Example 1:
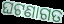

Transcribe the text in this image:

ଘଟଣାଗତ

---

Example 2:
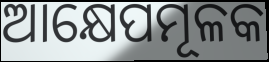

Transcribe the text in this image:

ଆକ୍ଷେପମୂଳକ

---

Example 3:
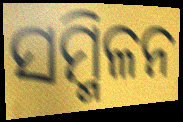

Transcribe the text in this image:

ସମ୍ମିଳନ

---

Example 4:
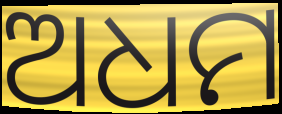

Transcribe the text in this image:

ଅଧମ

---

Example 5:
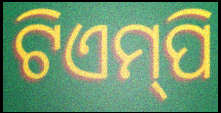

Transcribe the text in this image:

ଟିଏମ୍‌ପି